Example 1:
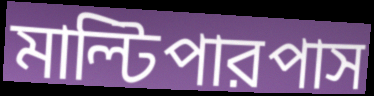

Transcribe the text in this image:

মাল্টিপারপাস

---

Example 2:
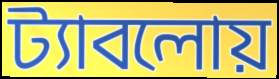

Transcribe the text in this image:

ট্যাবলোয়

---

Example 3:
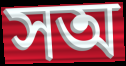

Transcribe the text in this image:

সঅ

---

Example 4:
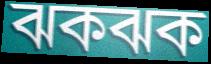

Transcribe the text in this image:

ঝকঝক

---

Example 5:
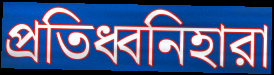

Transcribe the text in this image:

প্রতিধ্বনিহারা